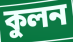
কুলন